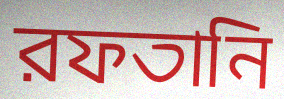
রফতানি